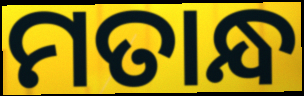
ମତାନ୍ଧ